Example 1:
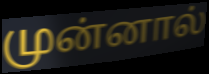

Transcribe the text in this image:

முன்னால்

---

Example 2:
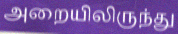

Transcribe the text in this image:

அறையிலிருந்து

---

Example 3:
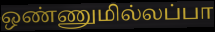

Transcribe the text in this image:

ஒண்ணுமில்லப்பா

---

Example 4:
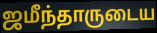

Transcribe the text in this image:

ஜமீந்தாருடைய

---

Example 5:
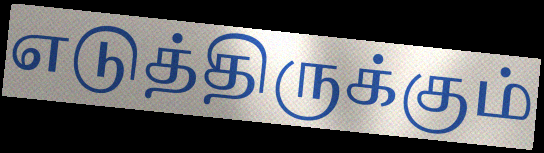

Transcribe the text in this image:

எடுத்திருக்கும்